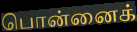
பொன்னைக்